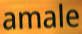
amale